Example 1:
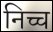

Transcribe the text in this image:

निच्च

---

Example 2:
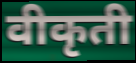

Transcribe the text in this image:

वीकृती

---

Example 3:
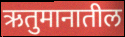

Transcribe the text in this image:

ऋतुमानातील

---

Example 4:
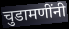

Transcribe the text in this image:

चुडामणींनी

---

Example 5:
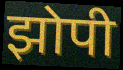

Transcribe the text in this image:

झोपी